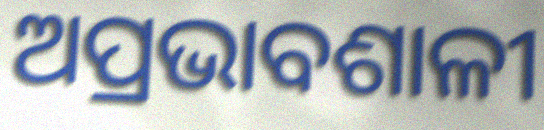
ଅପ୍ରଭାବଶାଳୀ